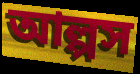
আল্পস